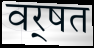
वर्षत